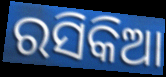
ରସିକିଆ